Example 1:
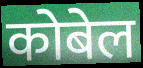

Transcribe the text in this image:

कोबेल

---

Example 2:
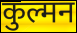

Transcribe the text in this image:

कुल्मन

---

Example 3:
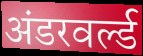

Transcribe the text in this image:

अंडरवर्ल्ड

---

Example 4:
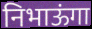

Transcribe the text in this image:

निभाऊंगा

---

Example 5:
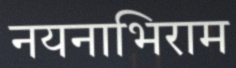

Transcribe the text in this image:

नयनाभिराम